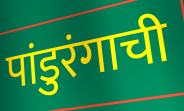
पांडुरंगाची